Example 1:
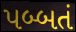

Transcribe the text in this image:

પબ્બતં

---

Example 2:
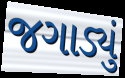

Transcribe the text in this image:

જગાડ્યું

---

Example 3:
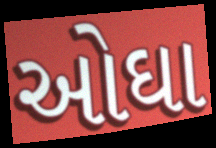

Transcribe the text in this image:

ઓઘા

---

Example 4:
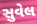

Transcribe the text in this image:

સુવેલ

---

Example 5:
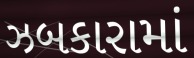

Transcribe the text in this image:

ઝબકારામાં